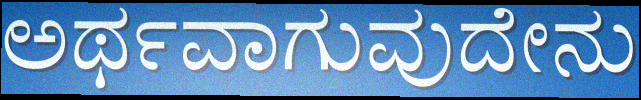
ಅರ್ಥವಾಗುವುದೇನು